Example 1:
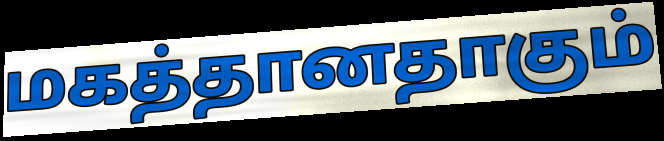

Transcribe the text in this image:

மகத்தானதாகும்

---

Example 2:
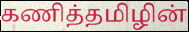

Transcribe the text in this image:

கணித்தமிழின்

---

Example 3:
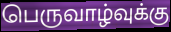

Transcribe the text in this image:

பெருவாழ்வுக்கு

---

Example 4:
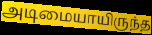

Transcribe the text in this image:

அடிமையாயிருந்த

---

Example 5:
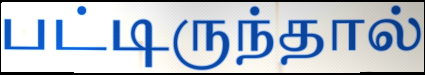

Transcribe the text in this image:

பட்டிருந்தால்